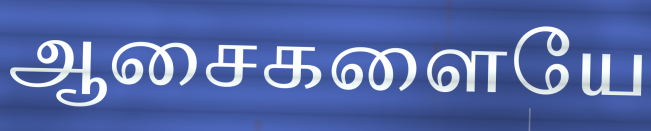
ஆசைகளையே